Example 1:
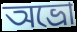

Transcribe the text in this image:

অভ্রো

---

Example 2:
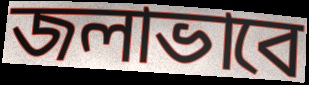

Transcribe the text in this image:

জলাভাবে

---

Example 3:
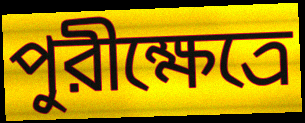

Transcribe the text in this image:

পুরীক্ষেত্রে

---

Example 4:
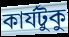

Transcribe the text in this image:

কার্যটুকু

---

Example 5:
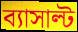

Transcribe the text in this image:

ব্যাসাল্ট